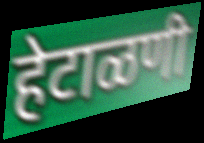
हेटाळणी